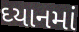
ઘ્યાનમાં